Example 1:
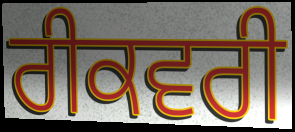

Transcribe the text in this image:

ਰੀਕਵਰੀ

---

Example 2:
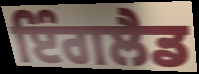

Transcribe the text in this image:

ਇੰਗਲੈਡ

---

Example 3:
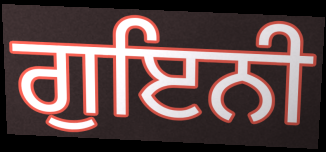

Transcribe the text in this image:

ਗੁਇਨੀ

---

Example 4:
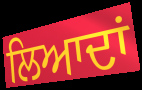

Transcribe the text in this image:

ਲਿਆਦਾਂ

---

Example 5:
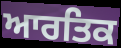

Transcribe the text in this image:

ਆਰਤਿਕ